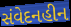
સંવેદનહીન